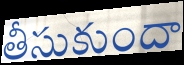
తీసుకుందా